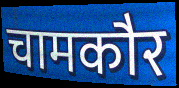
चामकौर